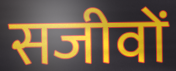
सजीवों